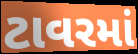
ટાવરમાં